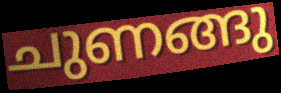
ചുണങ്ങു